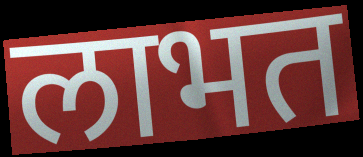
लाभत